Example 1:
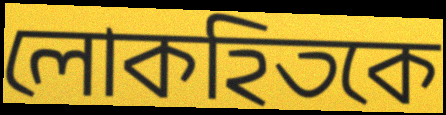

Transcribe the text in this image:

লোকহিতকে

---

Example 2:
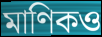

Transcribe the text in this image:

মাণিকও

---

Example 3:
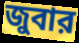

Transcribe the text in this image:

জুবার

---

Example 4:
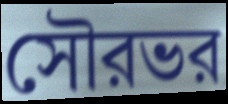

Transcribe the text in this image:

সৌরভর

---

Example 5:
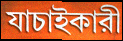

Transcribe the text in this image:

যাচাইকারী